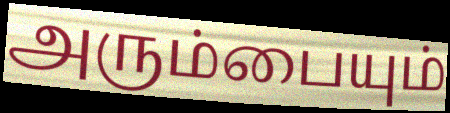
அரும்பையும்